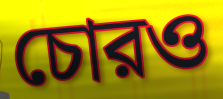
চোরও